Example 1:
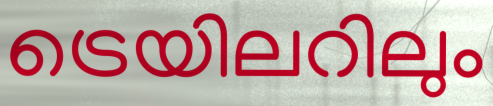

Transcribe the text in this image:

ട്രെയിലറിലും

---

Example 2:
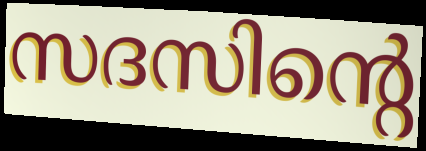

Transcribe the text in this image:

സദസിന്റെ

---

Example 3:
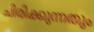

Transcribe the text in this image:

ചിരിക്കുന്നതും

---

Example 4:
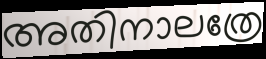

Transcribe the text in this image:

അതിനാലത്രേ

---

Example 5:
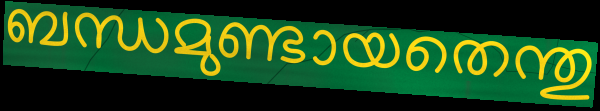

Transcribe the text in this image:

ബന്ധമുണ്ടായതെന്തു